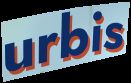
urbis